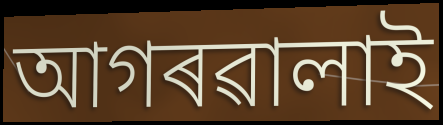
আগৰৱালাই